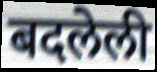
बदलेली